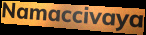
Namaccivaya